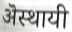
ऄस्थायी